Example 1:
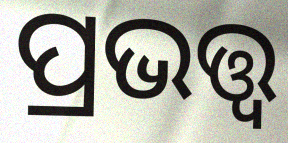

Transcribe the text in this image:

ପ୍ରଭତ୍ତ୍ଵ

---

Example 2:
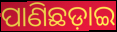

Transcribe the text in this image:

ପାଣିଛଡ଼ାଇ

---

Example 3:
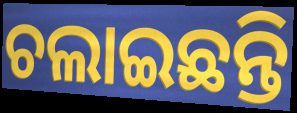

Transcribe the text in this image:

ଚଲାଇଛନ୍ତି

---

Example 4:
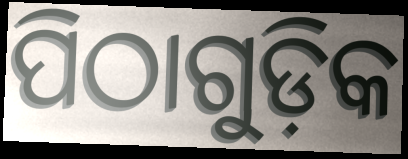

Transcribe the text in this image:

ପିଠାଗୁଡ଼ିକ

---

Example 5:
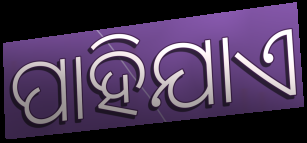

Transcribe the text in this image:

ପାହିଯାଏ